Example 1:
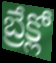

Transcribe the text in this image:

బ్రేక్లో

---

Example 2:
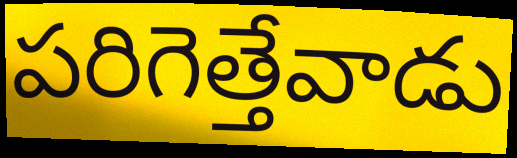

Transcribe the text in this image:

పరిగెత్తేవాడు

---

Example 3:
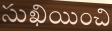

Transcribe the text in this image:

సుఖియించి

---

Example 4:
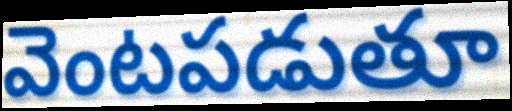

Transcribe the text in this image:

వెంటపడుతూ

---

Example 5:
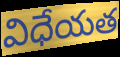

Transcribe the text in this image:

విధేయత